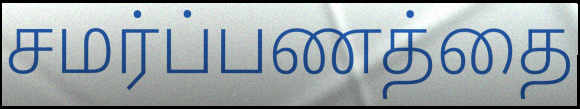
சமர்ப்பணத்தை